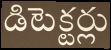
డిటెక్టర్లు